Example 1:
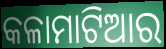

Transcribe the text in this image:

କଳାମାଟିଆର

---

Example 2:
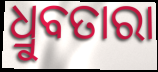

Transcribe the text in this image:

ଧ୍ରୁବତାରା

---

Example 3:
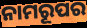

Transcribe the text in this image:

ନାମରୂପର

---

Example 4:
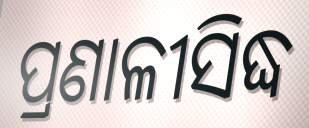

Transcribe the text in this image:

ପ୍ରଣାଳୀସିଦ୍ଧ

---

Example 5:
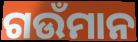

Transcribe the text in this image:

ଗଉଁମାନ